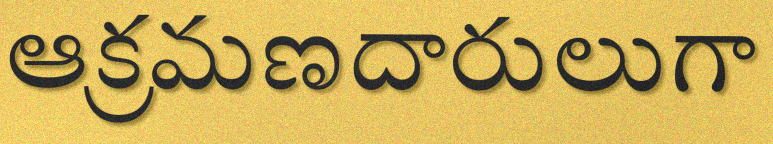
ఆక్రమణదారులుగా